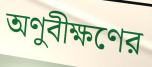
অণুবীক্ষণের